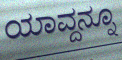
ಯಾವ್ದನ್ನೂ